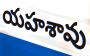
యహశావు